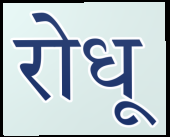
रोधू